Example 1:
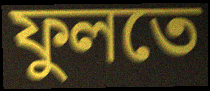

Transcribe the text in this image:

ফুলতে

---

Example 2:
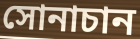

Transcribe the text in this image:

সোনাচান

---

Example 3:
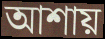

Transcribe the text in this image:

আশায়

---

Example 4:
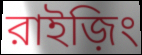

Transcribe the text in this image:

রাইজ়িং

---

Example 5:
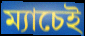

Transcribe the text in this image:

ম্যাচেই